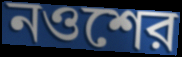
নওশের